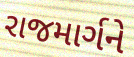
રાજમાર્ગને